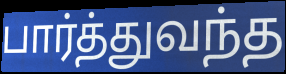
பார்த்துவந்த